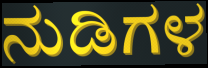
ನುಡಿಗಳ